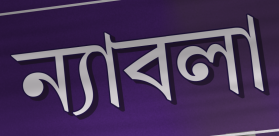
ন্যাবলা